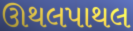
ઊથલપાથલ